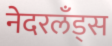
नेदरलँड्स